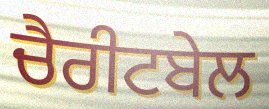
ਚੈਰੀਟਬੇਲ